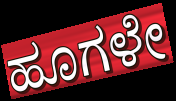
ಹೂಗಳೇ